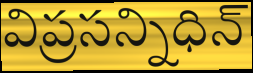
విప్రసన్నిధిన్